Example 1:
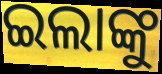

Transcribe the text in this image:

ଇଲାଙ୍କୁ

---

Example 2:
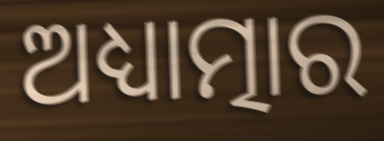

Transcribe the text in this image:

ଅଧ୍ୟାତ୍ମାର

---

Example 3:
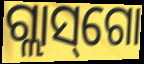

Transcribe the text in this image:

ଗ୍ଲାସ୍‌ଗୋ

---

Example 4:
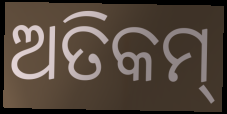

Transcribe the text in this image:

ଅତିକମ୍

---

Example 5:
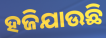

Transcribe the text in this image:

ହଜିଯାଉଛି